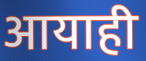
आयाही